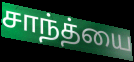
சாந்த்யை